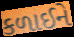
કળાઈને